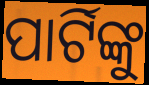
ପାର୍ଟିଙ୍କୁ